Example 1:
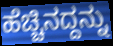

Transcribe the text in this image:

ಹೆಚ್ಚಿನದ್ದನ್ನು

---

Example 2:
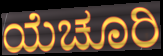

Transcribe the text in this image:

ಯೆಚೂರಿ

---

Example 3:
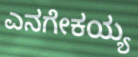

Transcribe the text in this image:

ಎನಗೇಕಯ್ಯ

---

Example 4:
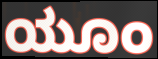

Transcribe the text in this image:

ಯೂಂ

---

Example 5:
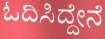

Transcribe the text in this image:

ಓದಿಸಿದ್ದೇನೆ